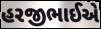
હરજીભાઈએ